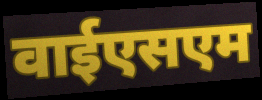
वाईएसएम